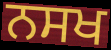
ਨਸਖ